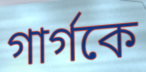
গার্গকে